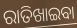
ରାତିଖାଇବା